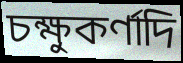
চক্ষুকর্ণাদি